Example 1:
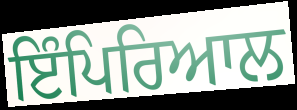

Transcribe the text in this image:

ਇੰਪਿਰਿਆਲ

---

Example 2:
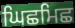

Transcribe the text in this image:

ਘਿਛਮਿਛ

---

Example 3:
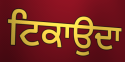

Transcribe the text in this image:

ਟਿਕਾਉਦਾ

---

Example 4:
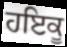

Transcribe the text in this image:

ਹਇਕੂ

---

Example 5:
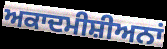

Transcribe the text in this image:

ਅਕਾਦਮੀਸ਼ੀਅਨਾਂ